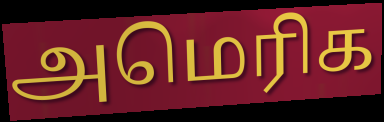
அமெரிக